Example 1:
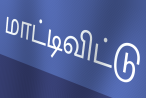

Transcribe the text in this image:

மாட்டிவிட்டு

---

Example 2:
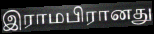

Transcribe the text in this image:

இராமபிரானது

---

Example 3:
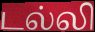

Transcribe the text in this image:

டல்லி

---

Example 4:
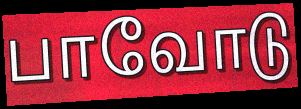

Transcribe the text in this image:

பாவோடு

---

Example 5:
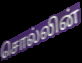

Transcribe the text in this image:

சொல்லின்